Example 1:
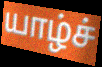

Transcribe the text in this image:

யாழ்ச்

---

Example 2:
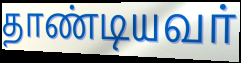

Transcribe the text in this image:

தாண்டியவர்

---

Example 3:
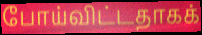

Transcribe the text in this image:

போய்விட்டதாகக்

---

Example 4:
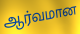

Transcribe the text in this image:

ஆர்வமான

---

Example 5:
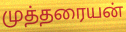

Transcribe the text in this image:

முத்தரையன்